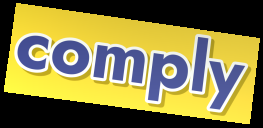
comply